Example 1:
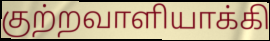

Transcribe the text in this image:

குற்றவாளியாக்கி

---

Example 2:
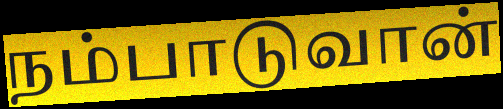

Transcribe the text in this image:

நம்பாடுவான்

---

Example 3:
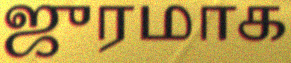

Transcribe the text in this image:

ஜுரமாக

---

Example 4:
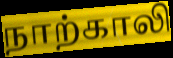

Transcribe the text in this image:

நாற்காலி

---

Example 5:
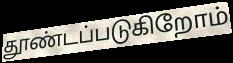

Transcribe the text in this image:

தூண்டப்படுகிறோம்